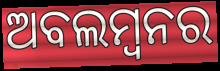
ଅବଲମ୍ବନର